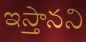
ఇస్తానని